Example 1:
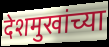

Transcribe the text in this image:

देशमुखांच्या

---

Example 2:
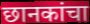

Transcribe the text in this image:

छानकांचा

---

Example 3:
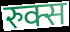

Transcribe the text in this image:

रुक्स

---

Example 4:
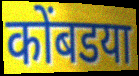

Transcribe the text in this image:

कोंबडया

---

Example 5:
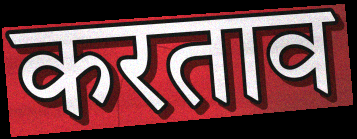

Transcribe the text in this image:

करताव